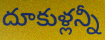
దూకుళ్లన్నీ